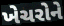
ખેચરોને